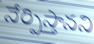
నేర్పిస్తానని